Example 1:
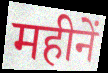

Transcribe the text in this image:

महीनें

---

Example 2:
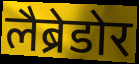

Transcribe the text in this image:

लैब्रेडोर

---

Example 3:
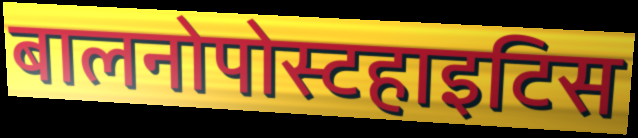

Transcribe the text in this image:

बालनोपोस्टहाइटिस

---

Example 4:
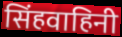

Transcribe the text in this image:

सिंहवाहिनी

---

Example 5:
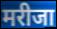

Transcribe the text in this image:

मरीजा